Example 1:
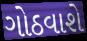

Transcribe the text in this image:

ગોઠવાશે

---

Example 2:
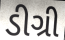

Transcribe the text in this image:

ડીગ્રી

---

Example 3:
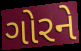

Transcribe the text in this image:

ગોરને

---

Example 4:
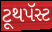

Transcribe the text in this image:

ટૂથપૅસ્ટ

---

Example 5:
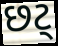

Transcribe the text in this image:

છટ્